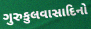
ગુરુકુલવાસાદિનો